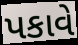
પકાવે